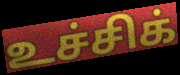
உச்சிக்